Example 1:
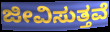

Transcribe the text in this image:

ಜೀವಿಸುತ್ತವೆ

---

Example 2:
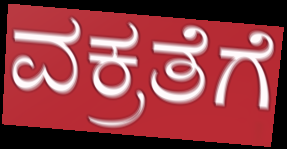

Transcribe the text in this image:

ವಕ್ರತೆಗೆ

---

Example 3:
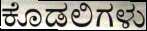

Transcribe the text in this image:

ಕೊಡಲಿಗಳು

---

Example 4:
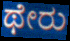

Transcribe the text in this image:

ಥೇರು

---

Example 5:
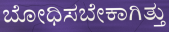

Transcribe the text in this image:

ಬೋಧಿಸಬೇಕಾಗಿತ್ತು